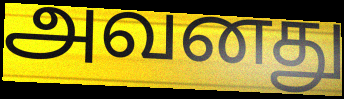
அவனது